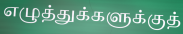
எழுத்துக்களுக்குத்